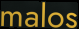
malos